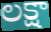
లక్షా